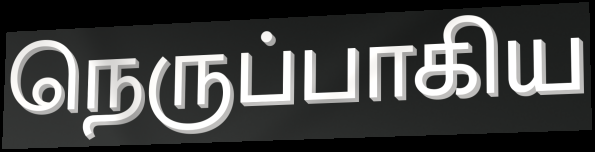
நெருப்பாகிய